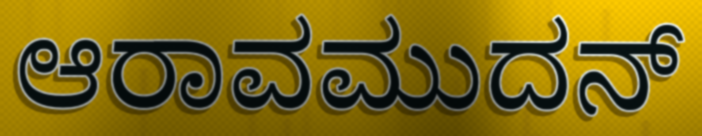
ಆರಾವಮುದನ್